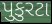
પુકુરટા